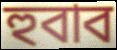
হুবাব